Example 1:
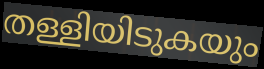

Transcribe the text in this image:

തള്ളിയിടുകയും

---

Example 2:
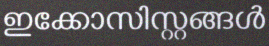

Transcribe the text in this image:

ഇക്കോസിസ്റ്റങ്ങൾ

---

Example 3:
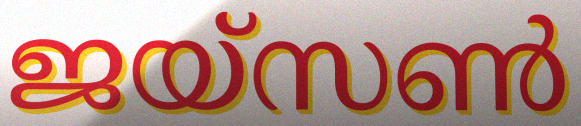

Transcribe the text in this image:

ജയ്സൺ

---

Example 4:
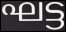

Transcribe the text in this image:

ഘട്ട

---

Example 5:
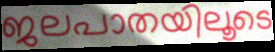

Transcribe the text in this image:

ജലപാതയിലൂടെ